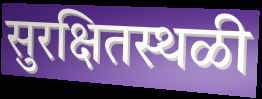
सुरक्षितस्थळी